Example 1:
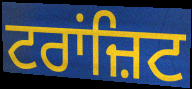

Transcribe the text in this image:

ਟਰਾਂਜ਼ਿਟ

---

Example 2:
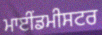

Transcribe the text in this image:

ਮਾਈਂਡਮੀਸਟਰ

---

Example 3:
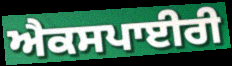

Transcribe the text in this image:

ਐਕਸਪਾਈਰੀ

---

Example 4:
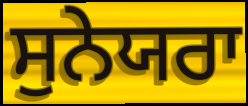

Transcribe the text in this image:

ਸੁਨੇਯਰਾ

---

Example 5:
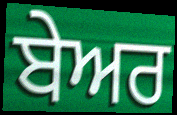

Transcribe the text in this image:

ਬੇਅਰ